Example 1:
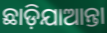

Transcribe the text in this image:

ଛାଡ଼ିଯାଆନ୍ତା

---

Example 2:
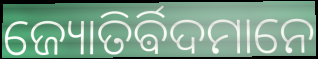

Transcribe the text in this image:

ଜ୍ୟୋତିର୍ଵିଦମାନେ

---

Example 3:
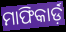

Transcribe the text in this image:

ମାଫିକାର୍ଡ଼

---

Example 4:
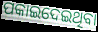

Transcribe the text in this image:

ପକାଇଦେଇଥିବା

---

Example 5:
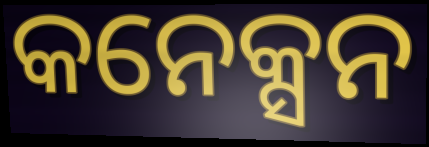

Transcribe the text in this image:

କନେକ୍ସନ